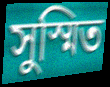
সুস্মিত